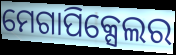
ମେଗାପିକ୍ସେଲର